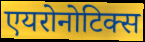
एयरोनोटिक्स